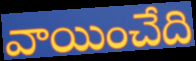
వాయించేది